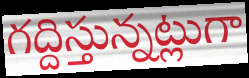
గద్దిస్తున్నట్లుగా